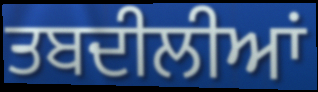
ਤਬਦੀਲੀਆਂ